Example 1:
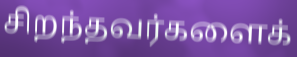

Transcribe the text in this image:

சிறந்தவர்களைக்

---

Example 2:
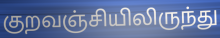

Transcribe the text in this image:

குறவஞ்சியிலிருந்து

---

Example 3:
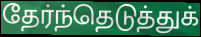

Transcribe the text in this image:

தேர்ந்தெடுத்துக்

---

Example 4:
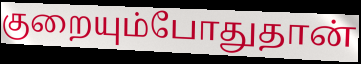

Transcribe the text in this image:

குறையும்போதுதான்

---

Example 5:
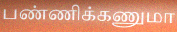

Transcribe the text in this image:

பண்ணிக்கணுமா